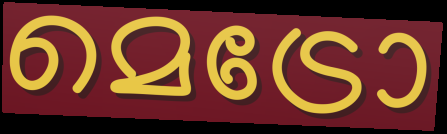
മെട്രോ